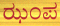
ಝಂಪ